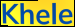
Khele